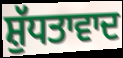
ਸ਼ੁੱਧਤਾਵਾਦ